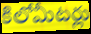
కిలోమీటర్లు